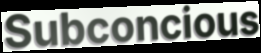
Subconcious